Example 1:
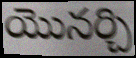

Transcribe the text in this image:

యొనర్చి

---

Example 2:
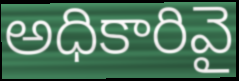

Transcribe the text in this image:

అధికారివై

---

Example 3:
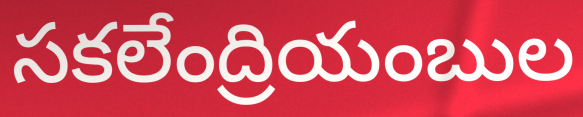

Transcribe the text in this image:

సకలేంద్రియంబుల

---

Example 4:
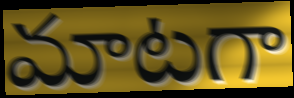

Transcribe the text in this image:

మాటగా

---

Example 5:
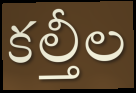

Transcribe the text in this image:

కల్తీల